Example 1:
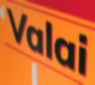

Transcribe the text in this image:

Valai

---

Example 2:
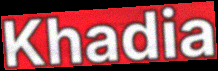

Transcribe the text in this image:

Khadia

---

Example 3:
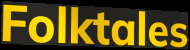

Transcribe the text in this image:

Folktales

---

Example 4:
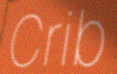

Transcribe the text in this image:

Crib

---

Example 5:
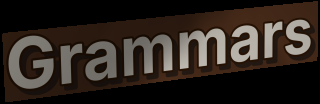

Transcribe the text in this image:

Grammars